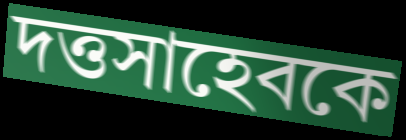
দত্তসাহেবকে